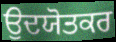
ਉਦਯੋਤਕਰ